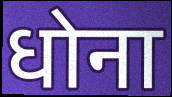
धोना